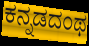
ಕನ್ನಡದಂಥ